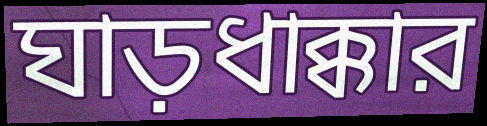
ঘাড়ধাক্কার